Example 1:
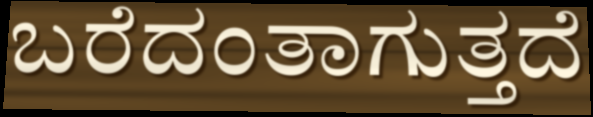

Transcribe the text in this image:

ಬರೆದಂತಾಗುತ್ತದೆ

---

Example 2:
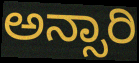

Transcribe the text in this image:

ಅನ್ಸಾರಿ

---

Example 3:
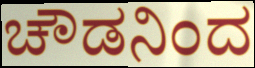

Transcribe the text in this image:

ಚೌಡನಿಂದ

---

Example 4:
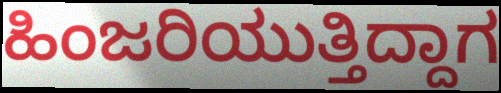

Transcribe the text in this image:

ಹಿಂಜರಿಯುತ್ತಿದ್ದಾಗ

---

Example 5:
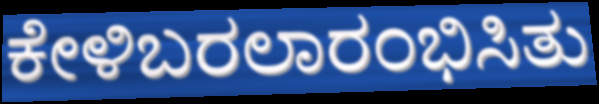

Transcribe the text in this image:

ಕೇಳಿಬರಲಾರಂಭಿಸಿತು